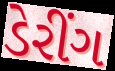
ડેરીંગ